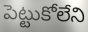
పెట్టుకోలేని